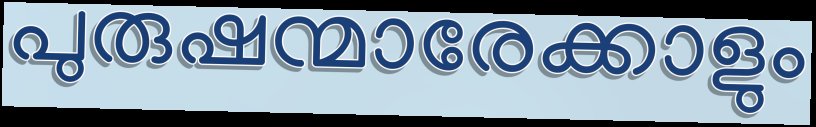
പുരുഷന്മാരേക്കാളും